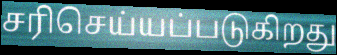
சரிசெய்யப்படுகிறது